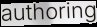
authoring